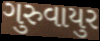
ગુરુવાયુર